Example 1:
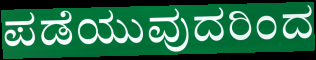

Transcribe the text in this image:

ಪಡೆಯುವುದರಿಂದ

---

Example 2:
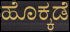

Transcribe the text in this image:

ಹೊಕ್ಕಡೆ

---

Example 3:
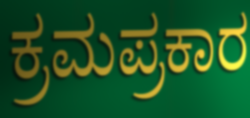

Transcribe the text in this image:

ಕ್ರಮಪ್ರಕಾರ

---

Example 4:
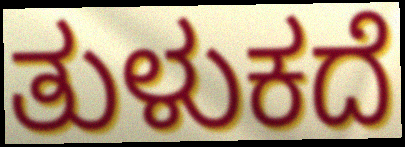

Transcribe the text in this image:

ತುಳುಕದೆ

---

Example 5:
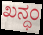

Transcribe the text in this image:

ಖನ್ಧಂ